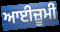
ਆਈਜ਼ੂਮੀ